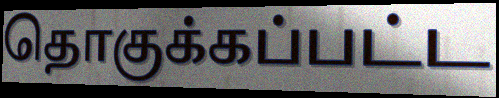
தொகுக்கப்பட்ட